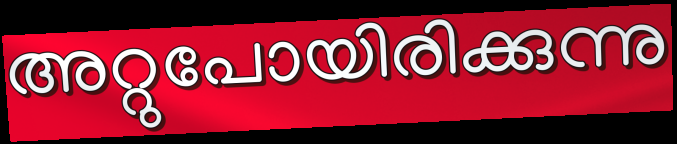
അറ്റുപോയിരിക്കുന്നു